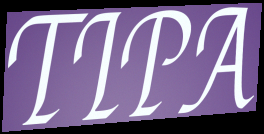
TIPA